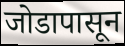
जोडापासून